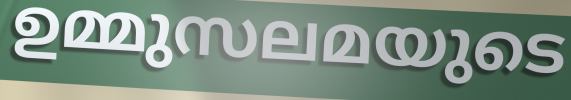
ഉമ്മുസലമയുടെ